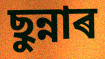
ছুন্নাৰ